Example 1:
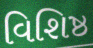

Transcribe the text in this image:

વિશિષ્ઠ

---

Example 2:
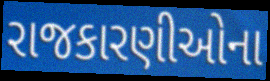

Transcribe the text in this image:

રાજકારણીઓના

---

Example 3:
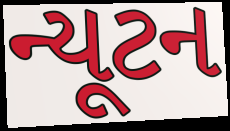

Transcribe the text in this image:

ન્યૂટન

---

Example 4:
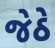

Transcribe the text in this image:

જેઠે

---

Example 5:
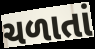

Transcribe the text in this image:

ચળાતાં